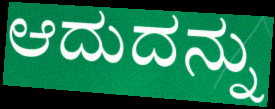
ಆದುದನ್ನು